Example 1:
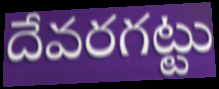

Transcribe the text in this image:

దేవరగట్టు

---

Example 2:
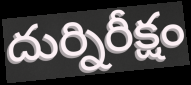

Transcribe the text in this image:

దుర్నిరీక్షం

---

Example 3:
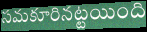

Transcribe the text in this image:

సమకూరినట్టయింది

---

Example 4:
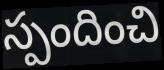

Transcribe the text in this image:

స్పందించి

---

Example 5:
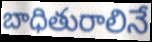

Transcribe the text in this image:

బాధితురాలినే